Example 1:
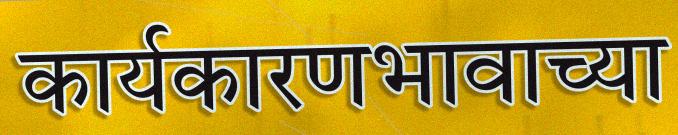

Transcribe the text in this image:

कार्यकारणभावाच्या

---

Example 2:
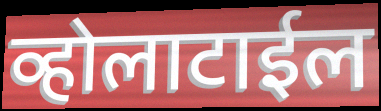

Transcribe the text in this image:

व्होलाटाईल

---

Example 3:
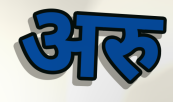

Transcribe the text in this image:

अरु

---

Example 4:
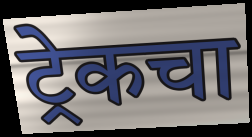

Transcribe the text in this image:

ट्रेकचा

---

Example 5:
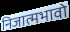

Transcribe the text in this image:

निजात्मभावो